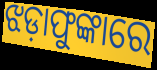
ଝଡ଼ାଫୁଙ୍କାରେ